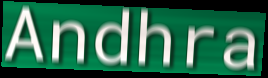
Andhra